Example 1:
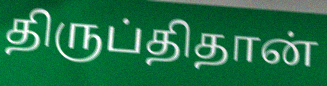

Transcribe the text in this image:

திருப்திதான்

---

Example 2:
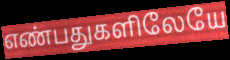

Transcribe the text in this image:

எண்பதுகளிலேயே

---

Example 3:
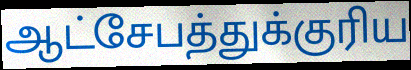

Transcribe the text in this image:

ஆட்சேபத்துக்குரிய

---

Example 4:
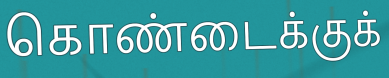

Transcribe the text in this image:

கொண்டைக்குக்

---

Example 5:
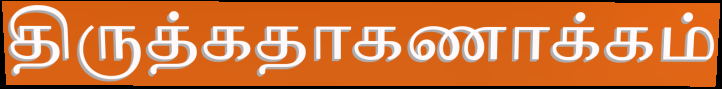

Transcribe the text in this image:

திருத்கதாகணாக்கம்